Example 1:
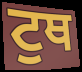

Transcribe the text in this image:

ਟੁਥ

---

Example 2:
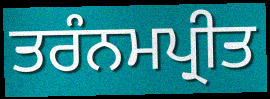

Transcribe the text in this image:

ਤਰੰਨਮਪ੍ਰੀਤ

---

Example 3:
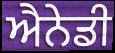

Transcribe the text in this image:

ਐਨੇਡੀ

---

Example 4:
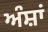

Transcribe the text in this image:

ਅੰਸ਼ਾਂ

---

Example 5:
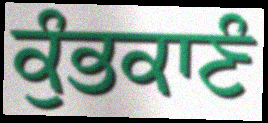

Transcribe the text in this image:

ਕੁੰਭਕਾਣੰ